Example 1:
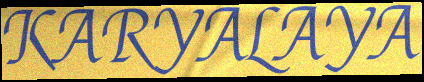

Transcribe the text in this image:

KARYALAYA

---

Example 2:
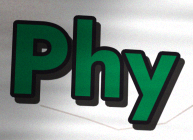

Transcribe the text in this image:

Phy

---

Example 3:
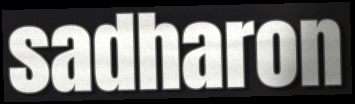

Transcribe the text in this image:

sadharon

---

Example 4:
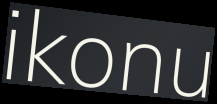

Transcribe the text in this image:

ikonu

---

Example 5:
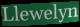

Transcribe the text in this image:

Llewelyn